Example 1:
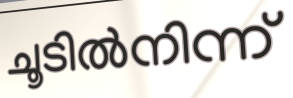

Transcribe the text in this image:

ചൂടിൽനിന്ന്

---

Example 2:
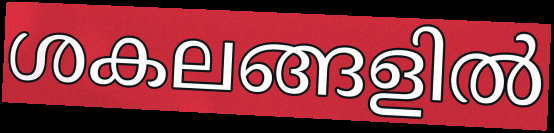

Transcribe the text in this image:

ശകലങ്ങളിൽ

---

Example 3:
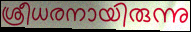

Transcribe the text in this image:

ശ്രീധരനായിരുന്നു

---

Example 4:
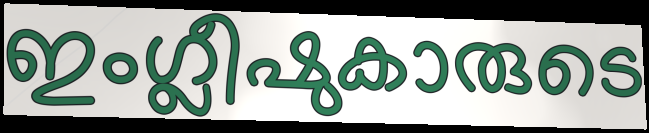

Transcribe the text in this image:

ഇംഗ്ലീഷുകാരുടെ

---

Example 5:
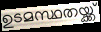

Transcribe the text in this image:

ഉടമസ്ഥതയ്ക്ക്